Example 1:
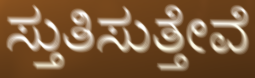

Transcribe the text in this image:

ಸ್ತುತಿಸುತ್ತೇವೆ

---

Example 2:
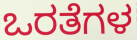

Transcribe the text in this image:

ಒರತೆಗಳ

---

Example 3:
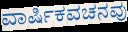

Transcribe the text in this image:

ವಾರ್ಷಿಕವಚನವು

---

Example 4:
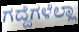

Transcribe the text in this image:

ಗದ್ದೆಗಳೆಲ್ಲಾ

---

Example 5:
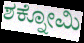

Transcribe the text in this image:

ಶಕ್ನೋಮಿ